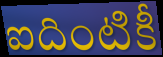
ఐదింటికీ